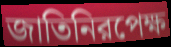
জাতিনিরপেক্ষ